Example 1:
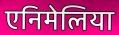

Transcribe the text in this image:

एनिमेलिया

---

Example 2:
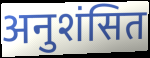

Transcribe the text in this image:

अनुशंसित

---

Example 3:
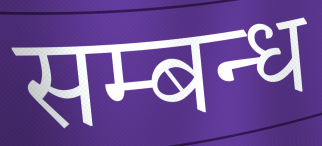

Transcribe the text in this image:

सम्बन्ध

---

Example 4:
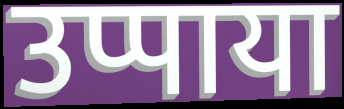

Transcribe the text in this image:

उप्पाया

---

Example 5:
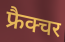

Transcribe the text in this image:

फ्रैक्चर